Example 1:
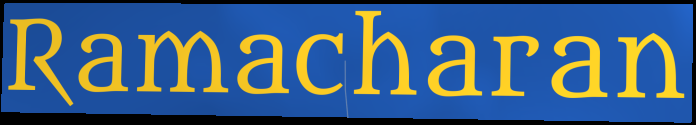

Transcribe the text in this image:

Ramacharan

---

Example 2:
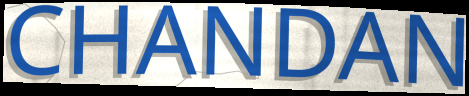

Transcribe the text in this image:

CHANDAN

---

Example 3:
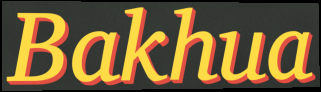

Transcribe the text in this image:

Bakhua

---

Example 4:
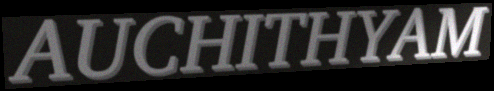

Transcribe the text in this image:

AUCHITHYAM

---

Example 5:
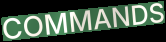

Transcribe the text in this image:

COMMANDS